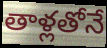
తాళ్లతోనే